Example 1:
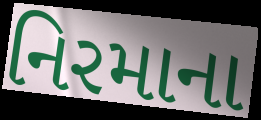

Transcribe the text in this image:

નિરમાના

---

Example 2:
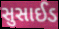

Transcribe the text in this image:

સુસાઈડ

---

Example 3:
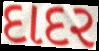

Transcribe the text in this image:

દાદર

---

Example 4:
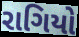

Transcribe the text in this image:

રાગિયો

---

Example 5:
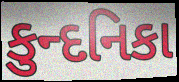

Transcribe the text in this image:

કુન્દનિકા